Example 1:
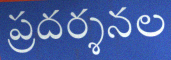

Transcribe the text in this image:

ప్రదర్శనల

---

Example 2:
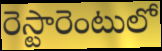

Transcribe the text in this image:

రెస్టారెంటులో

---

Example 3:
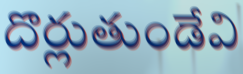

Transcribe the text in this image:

దొర్లుతుండేవి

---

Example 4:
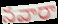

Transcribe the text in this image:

నవారా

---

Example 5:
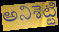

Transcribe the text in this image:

అనిశెట్టి